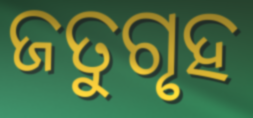
ଜତୁଗୃହ